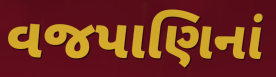
વજપાણિનાં